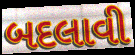
બદલાવી